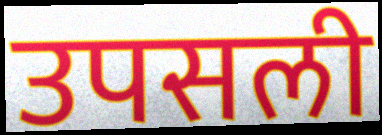
उपसली